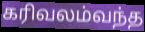
கரிவலம்வந்த